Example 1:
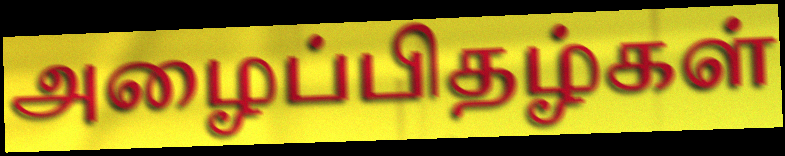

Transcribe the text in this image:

அழைப்பிதழ்கள்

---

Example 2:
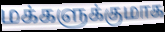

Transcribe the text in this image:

மக்களுக்குமாக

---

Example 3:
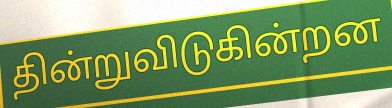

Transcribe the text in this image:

தின்றுவிடுகின்றன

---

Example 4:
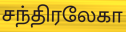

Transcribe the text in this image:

சந்திரலேகா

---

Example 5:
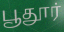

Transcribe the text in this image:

பூதூர்